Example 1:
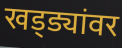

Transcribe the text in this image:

खड्ड्यांवर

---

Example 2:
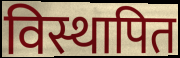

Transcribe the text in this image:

विस्थापित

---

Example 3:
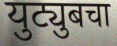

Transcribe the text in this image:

युट्युबचा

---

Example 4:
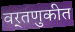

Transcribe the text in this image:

वर्तणुकीत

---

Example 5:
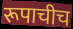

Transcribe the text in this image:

रूपाचीच